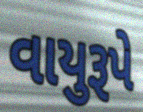
વાયુરૂપે